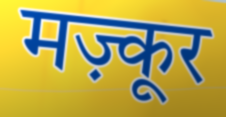
मज़्कूर